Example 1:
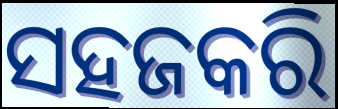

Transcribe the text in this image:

ସହଜକରି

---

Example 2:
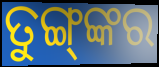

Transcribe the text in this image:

ତୁଙ୍ଗ୍‍ଙ୍କର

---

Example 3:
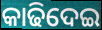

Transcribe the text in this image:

କାଢିଦେଇ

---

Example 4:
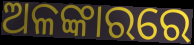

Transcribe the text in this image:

ଅଳଙ୍କାରରେ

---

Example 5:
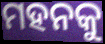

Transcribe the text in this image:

ମହନକୁ